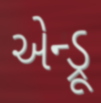
એન્ડ્રૂ